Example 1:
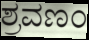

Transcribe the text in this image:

ಶ್ರವಣಂ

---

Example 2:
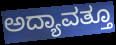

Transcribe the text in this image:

ಅದ್ಯಾವತ್ತೂ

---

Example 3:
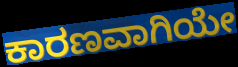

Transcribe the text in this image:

ಕಾರಣವಾಗಿಯೇ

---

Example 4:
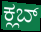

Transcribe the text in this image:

ಕ್ಲಬ್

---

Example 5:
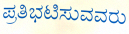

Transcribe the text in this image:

ಪ್ರತಿಭಟಿಸುವವರು